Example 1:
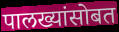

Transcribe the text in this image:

पालख्यांसोबत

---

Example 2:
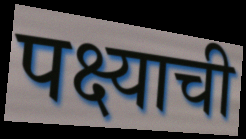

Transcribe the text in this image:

पक्ष्याची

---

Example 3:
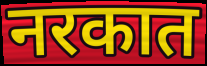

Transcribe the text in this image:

नरकात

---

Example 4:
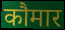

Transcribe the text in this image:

कौमार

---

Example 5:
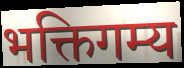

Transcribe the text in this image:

भक्तिगम्य